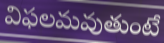
విఫలమవుతుంటే